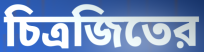
চিত্রজিতের